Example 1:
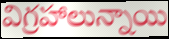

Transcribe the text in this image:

విగ్రహాలున్నాయి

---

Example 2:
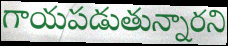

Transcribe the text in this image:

గాయపడుతున్నారని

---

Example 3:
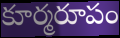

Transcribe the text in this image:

కూర్మరూపం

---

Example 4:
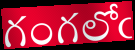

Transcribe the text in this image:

గంగలోఁ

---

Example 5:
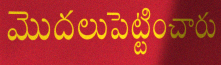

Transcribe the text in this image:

మొదలుపెట్టించారు